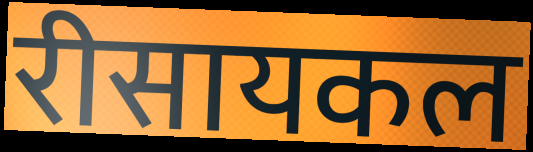
रीसायकल